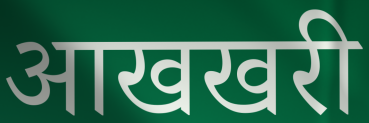
आखखरी